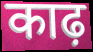
काढ़